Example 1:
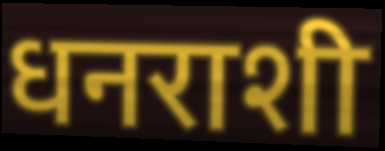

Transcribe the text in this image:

धनराशी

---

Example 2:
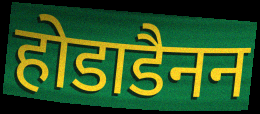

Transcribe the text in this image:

होडाडैनन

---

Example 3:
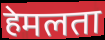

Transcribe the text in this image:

हेमलता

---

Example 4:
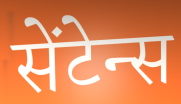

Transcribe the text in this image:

सेंटेन्स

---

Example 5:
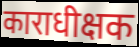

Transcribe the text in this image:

काराधीक्षक